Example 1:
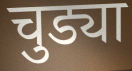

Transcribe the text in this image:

चुड्या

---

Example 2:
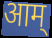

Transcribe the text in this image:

आम्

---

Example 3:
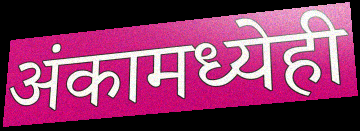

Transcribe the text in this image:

अंकामध्येही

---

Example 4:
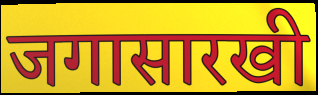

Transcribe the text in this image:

जगासारखी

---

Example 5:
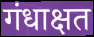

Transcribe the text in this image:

गंधाक्षत